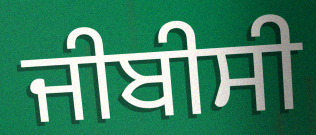
ਜੀਬੀਸੀ